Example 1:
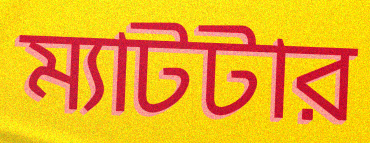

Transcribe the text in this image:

ম্যাটটার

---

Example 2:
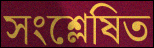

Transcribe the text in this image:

সংশ্লেষিত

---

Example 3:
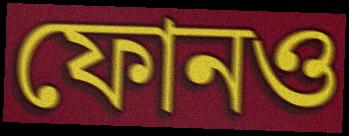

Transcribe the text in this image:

ফোনও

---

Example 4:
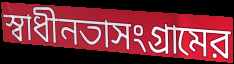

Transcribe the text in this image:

স্বাধীনতাসংগ্রামের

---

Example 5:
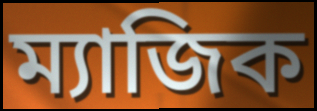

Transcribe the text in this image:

ম্যাজিক